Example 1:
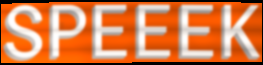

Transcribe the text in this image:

SPEEEK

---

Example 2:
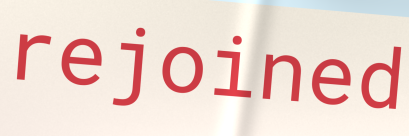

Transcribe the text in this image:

rejoined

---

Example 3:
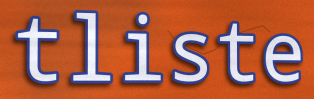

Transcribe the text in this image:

tliste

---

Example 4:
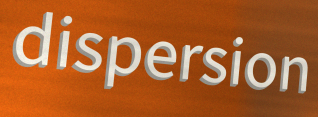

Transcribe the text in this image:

dispersion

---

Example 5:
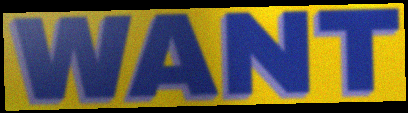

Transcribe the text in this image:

WANT